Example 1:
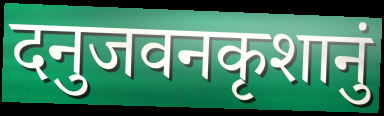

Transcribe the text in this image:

दनुजवनकृशानुं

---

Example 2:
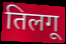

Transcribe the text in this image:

तिलगू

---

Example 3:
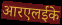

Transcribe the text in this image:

आरएलईके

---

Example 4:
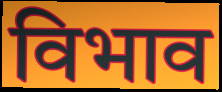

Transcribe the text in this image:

विभाव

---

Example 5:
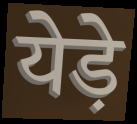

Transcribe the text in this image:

येड़े